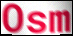
Osm